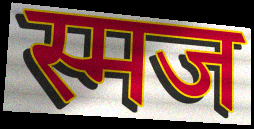
स्मज